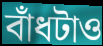
বাঁধটাও